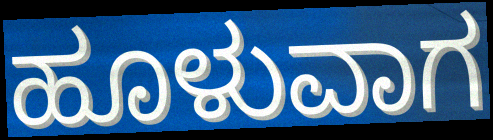
ಹೂಳುವಾಗ